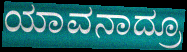
ಯಾವನಾದ್ರೂ